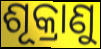
ଶୂକ୍ରାଣୁ